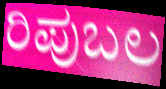
ರಿಪುಬಲ